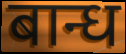
बान्ध